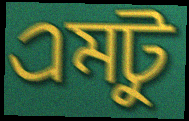
এমটু